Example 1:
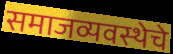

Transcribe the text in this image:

समाजव्यवस्थेचे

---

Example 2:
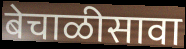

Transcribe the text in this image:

बेचाळीसावा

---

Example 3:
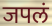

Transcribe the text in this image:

जपलं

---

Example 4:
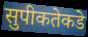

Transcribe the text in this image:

सुपीकतेकडे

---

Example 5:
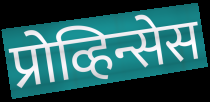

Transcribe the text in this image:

प्रोव्हिन्सेस